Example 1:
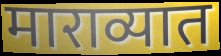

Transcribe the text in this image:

माराव्यात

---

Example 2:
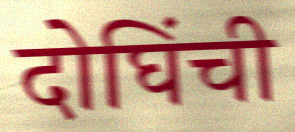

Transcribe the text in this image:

दोघिंची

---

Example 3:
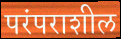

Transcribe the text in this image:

परंपराशील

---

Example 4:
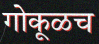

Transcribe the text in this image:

गोकूळच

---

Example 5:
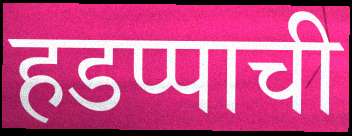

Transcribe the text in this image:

हडप्पाची